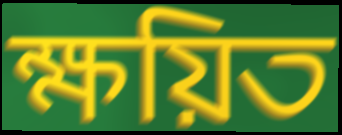
ক্ষয়িত